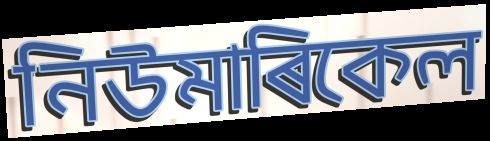
নিউমাৰিকেল